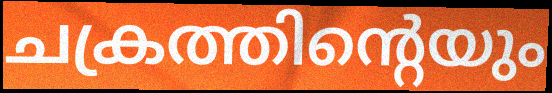
ചക്രത്തിന്റെയും